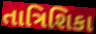
તાત્રિશિકા